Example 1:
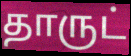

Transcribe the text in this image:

தாருட்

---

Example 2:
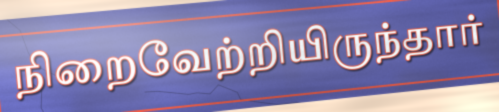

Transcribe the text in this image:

நிறைவேற்றியிருந்தார்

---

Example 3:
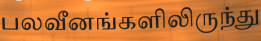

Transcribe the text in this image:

பலவீனங்களிலிருந்து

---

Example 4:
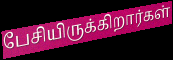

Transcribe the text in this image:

பேசியிருக்கிறார்கள்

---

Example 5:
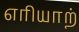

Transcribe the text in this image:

எரியாற்